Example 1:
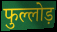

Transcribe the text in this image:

फुल्लोड़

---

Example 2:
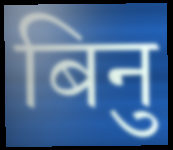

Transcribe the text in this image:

बिनु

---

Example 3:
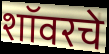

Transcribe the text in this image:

शॉवरचे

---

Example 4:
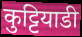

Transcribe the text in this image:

कुट्टियाडी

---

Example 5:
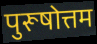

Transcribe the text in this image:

पुरूषोत्तम